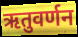
ऋतुवर्णन